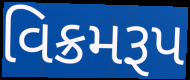
વિક્રમરૂપ